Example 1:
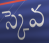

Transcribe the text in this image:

స్కెవ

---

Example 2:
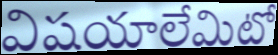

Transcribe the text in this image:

విషయాలేమిటో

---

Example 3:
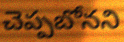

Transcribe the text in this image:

చెప్పబోనని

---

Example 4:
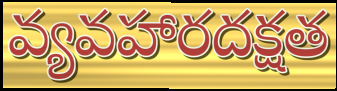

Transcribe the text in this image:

వ్యవహారదక్షత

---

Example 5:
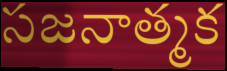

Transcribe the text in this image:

సజనాత్మక